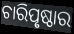
ଚାରିପୃଷ୍ଠାର